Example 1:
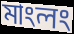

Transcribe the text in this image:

মাংলং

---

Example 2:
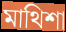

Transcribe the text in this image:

মাথিশা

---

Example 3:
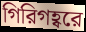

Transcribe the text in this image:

গিরিগহ্বরে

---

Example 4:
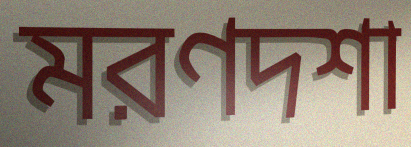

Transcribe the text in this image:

মরণদশা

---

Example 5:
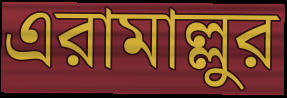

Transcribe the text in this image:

এরামাল্লুর